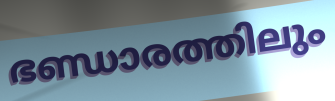
ഭണ്ഡാരത്തിലും